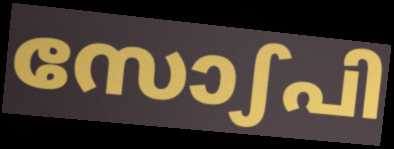
സോഽപി